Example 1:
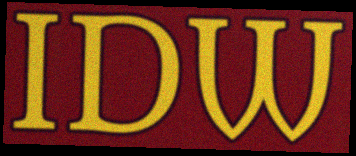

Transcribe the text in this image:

IDW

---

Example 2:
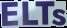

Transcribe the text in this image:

ELTs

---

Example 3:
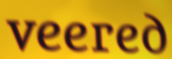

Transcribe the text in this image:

veered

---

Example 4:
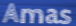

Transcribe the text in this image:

Amas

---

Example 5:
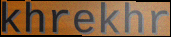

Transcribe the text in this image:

khrekhr